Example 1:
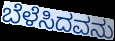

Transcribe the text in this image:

ಬೆಳೆಸಿದವನು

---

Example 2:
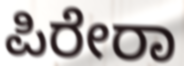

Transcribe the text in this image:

ಪಿರೇರಾ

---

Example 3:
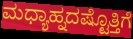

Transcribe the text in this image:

ಮಧ್ಯಾಹ್ನದಷ್ಟೊತ್ತಿಗೆ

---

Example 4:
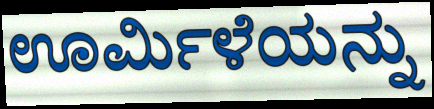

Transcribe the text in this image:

ಊರ್ಮಿಳೆಯನ್ನು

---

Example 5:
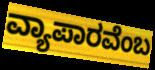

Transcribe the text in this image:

ವ್ಯಾಪಾರವೆಂಬ